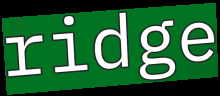
ridge